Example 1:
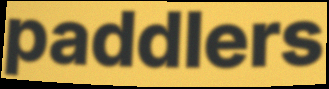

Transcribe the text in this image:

paddlers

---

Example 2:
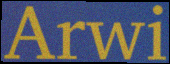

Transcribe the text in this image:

Arwi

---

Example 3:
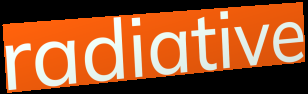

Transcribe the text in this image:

radiative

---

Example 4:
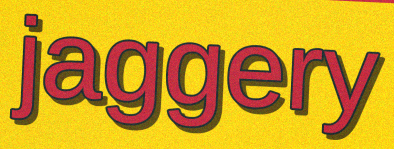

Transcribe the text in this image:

jaggery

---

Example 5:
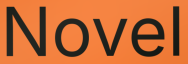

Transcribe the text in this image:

Novel